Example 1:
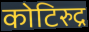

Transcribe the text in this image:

कोटिरुद्र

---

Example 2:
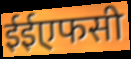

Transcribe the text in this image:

ईईएफसी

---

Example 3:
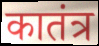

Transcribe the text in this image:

कातंत्र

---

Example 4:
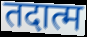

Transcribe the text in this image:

तदात्म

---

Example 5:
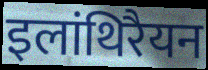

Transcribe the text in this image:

इलांथिरैयन